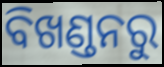
ବିଖଣ୍ଡନରୁ